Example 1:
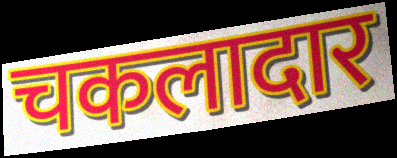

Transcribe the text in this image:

चकलादार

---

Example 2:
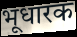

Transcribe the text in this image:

भूधारक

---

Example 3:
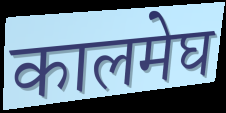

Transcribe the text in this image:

कालमेघ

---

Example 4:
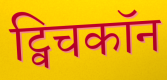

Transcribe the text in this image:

ट्विचकॉन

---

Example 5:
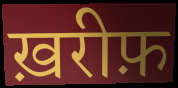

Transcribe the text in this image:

ख़रीफ़